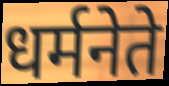
धर्मनेते